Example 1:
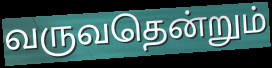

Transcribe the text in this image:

வருவதென்றும்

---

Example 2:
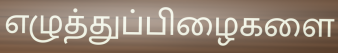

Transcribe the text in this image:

எழுத்துப்பிழைகளை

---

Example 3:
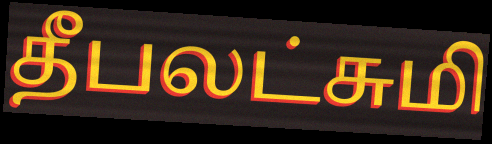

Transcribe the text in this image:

தீபலட்சுமி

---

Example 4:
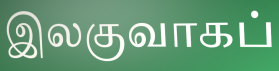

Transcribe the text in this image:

இலகுவாகப்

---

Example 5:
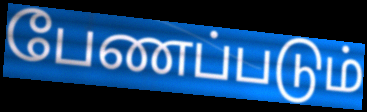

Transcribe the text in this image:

பேணப்படும்